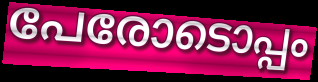
പേരോടൊപ്പം